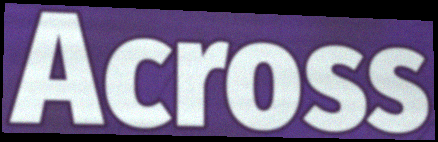
Across